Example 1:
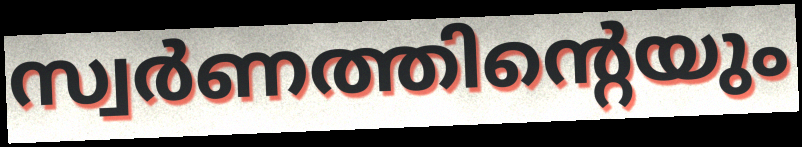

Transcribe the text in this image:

സ്വർണത്തിന്റെയും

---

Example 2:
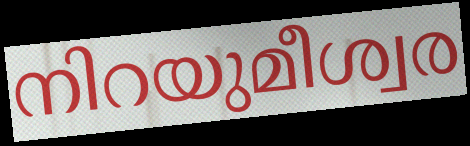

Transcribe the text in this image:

നിറയുമീശ്വര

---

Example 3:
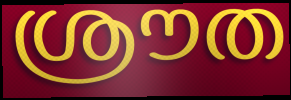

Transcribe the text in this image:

ശ്രൗത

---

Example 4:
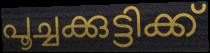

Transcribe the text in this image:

പൂച്ചക്കുട്ടിക്ക്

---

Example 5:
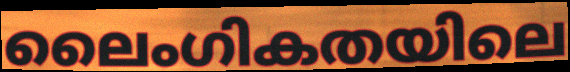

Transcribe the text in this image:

ലൈംഗികതയിലെ